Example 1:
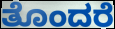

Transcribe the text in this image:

ತೊಂದರೆ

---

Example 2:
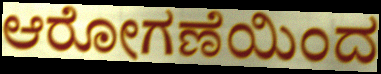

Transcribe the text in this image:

ಆರೋಗಣೆಯಿಂದ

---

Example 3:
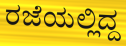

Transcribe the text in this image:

ರಜೆಯಲ್ಲಿದ್ದ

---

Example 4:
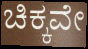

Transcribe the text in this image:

ಚಿಕ್ಕವೇ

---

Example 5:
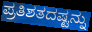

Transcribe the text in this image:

ಪ್ರತಿಶತದಷ್ಟನ್ನು